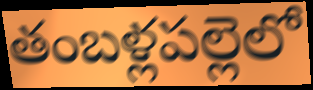
తంబళ్లపల్లెలో